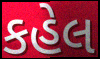
કહેલ